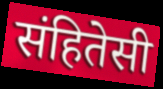
संहितेसी